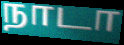
நாடா